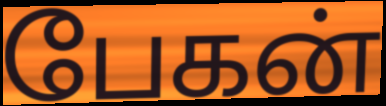
பேகன்